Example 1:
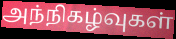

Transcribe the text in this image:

அந்நிகழ்வுகள்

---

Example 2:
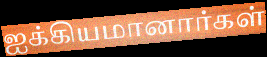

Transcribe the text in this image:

ஐக்கியமானார்கள்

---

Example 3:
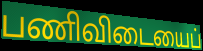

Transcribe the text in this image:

பணிவிடையைப்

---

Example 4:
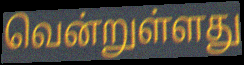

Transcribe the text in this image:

வென்றுள்ளது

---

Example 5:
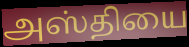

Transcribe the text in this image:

அஸ்தியை